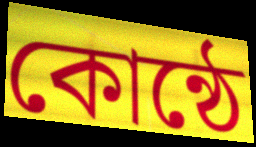
কোন্ঠে